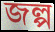
জল্প